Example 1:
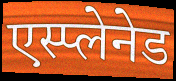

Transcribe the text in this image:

एस्प्लेनेड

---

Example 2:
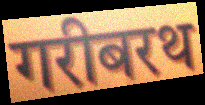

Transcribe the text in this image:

गरीबरथ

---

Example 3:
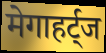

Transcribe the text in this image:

मेगाहर्ट्ज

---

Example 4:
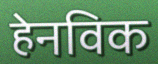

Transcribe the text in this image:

हेनविक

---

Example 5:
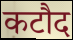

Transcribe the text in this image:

कटौद